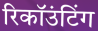
रिकॉउंटिंग